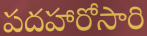
పదహారోసారి